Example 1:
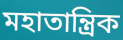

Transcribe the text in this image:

মহাতান্ত্রিক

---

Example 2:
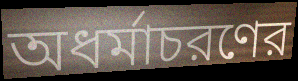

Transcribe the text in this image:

অধর্মাচরণের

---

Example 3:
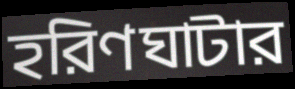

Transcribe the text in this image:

হরিণঘাটার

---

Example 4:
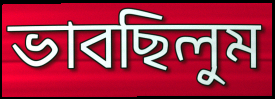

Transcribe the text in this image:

ভাবছিলুম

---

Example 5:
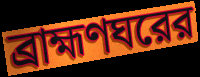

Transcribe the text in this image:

ব্রাহ্মণঘরের